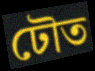
ঢৌত